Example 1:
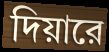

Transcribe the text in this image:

দিয়ারে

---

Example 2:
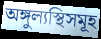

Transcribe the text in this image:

অঙ্গুল্যস্থিসমূহ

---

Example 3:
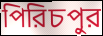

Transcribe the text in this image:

পিরিচপুর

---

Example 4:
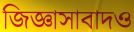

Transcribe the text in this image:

জিজ্ঞাসাবাদও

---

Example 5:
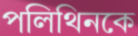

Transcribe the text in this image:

পলিথিনকে